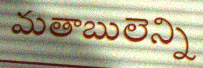
మతాబులెన్ని